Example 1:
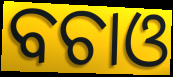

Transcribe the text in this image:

ବଚାଓ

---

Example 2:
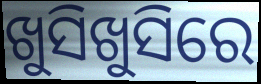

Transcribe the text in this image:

ଖୁସିଖୁସିରେ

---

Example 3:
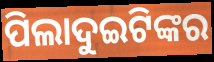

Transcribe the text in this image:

ପିଲାଦୁଇଟିଙ୍କର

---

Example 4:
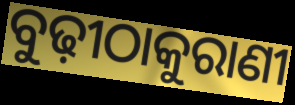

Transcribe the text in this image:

ବୁଢ଼ୀଠାକୁରାଣୀ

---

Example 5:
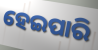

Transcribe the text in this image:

ହେଇପାରି